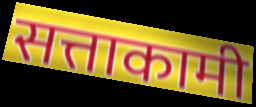
सत्ताकामी